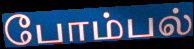
போம்பல்